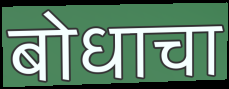
बोधाचा